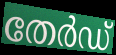
തേർഡ്